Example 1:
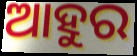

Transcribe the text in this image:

ଆହୁର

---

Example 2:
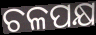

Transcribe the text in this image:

ଚଳପକ୍ଷ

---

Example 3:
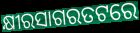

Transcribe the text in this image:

କ୍ଷୀରସାଗରତଟରେ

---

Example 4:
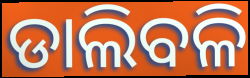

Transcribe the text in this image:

ଡାଲିବଳି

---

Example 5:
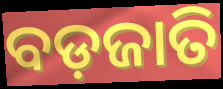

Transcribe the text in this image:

ବଡ଼ଜାତି